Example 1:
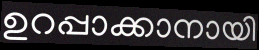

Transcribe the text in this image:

ഉറപ്പാക്കാനായി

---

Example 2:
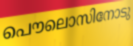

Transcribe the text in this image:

പൌലൊസിനോടു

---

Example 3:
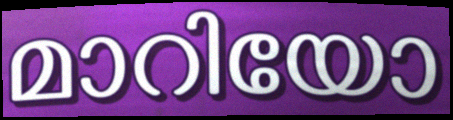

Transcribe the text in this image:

മാറിയോ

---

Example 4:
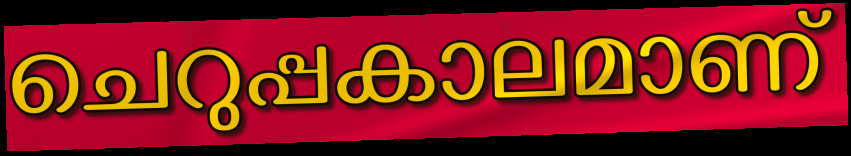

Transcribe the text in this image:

ചെറുപ്പകാലമാണ്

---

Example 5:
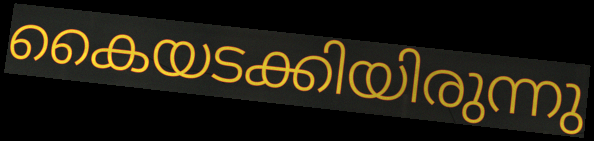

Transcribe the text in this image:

കൈയടക്കിയിരുന്നു